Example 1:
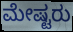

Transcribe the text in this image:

ಮೇಷ್ಟರು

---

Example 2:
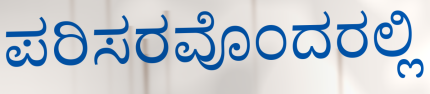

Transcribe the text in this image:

ಪರಿಸರವೊಂದರಲ್ಲಿ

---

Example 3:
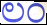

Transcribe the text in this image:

ಲಂ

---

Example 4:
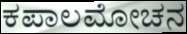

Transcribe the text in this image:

ಕಪಾಲಮೋಚನ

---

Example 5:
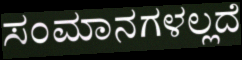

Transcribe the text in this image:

ಸಂಮಾನಗಳಲ್ಲದೆ